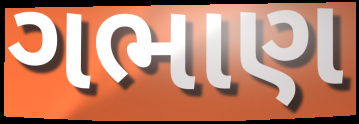
ગભાણ